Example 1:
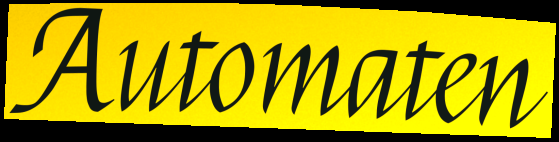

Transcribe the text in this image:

Automaten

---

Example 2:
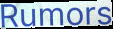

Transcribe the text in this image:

Rumors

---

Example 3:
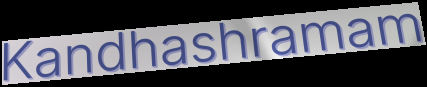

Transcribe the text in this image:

Kandhashramam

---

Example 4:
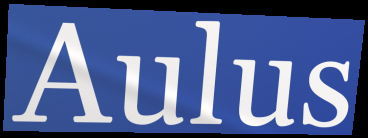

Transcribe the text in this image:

Aulus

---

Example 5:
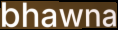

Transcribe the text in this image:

bhawna